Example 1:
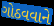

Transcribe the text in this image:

ગોઠવવાને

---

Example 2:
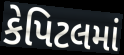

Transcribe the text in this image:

કેપિટલમાં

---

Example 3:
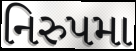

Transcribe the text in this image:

નિરુપમા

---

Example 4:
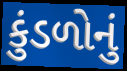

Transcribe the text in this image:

કુંડળોનું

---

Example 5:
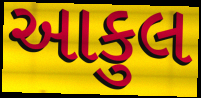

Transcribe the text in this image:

આકુલ